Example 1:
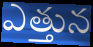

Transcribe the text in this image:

ఎత్తున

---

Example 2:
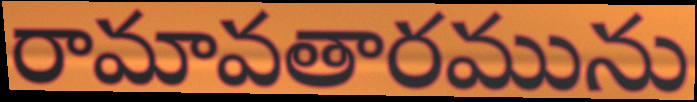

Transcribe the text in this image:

రామావతారమును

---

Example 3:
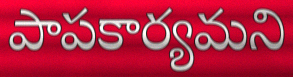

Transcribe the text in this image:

పాపకార్యమని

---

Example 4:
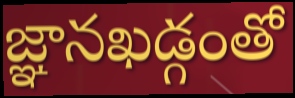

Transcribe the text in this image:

జ్ఞానఖడ్గంతో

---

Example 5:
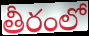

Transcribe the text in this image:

తీరంలో